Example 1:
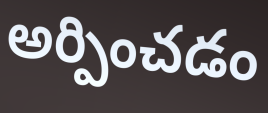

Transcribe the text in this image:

అర్పించడం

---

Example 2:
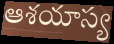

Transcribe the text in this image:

ఆశయాస్య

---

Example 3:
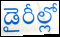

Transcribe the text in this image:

డైరీల్లో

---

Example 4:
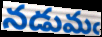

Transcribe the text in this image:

నడుమఁ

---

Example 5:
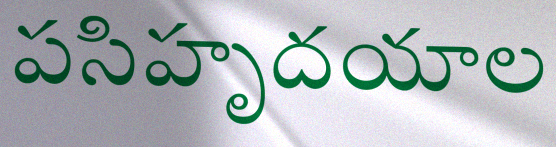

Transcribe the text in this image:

పసిహృదయాల